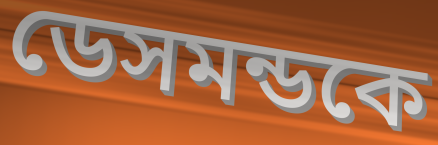
ডেসমন্ডকে